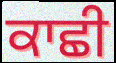
ਕਾਛੀ